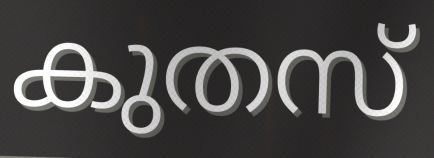
കുതസ്